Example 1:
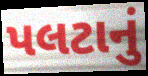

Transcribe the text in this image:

પલટાનું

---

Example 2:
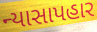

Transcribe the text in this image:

ન્યાસાપહાર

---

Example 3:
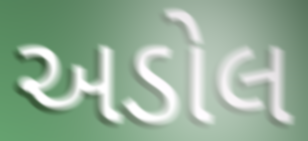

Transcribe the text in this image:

અડોલ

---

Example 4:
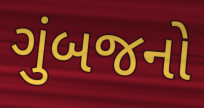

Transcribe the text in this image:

ગુંબજનો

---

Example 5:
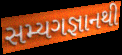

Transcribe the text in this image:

સમ્યગજ્ઞાનથી